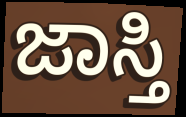
ಜಾಸ್ತಿ